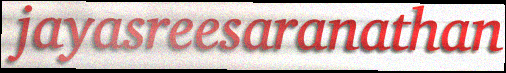
jayasreesaranathan